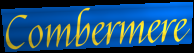
Combermere